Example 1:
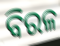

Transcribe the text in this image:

ବିରଳ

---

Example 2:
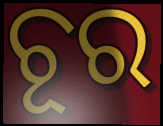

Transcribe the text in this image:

ଚୂର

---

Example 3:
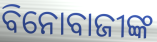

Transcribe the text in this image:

ବିନୋବାଜୀଙ୍କ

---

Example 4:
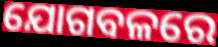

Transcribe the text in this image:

ଯୋଗବଳରେ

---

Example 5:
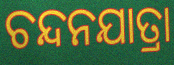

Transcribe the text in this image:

ଚନ୍ଦନଯାତ୍ରା